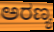
ಅರಣ್ಯ